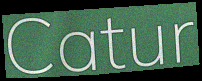
Catur